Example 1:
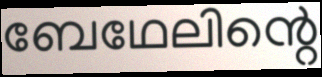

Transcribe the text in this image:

ബേഥേലിന്റെ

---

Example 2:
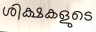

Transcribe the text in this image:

ശിക്ഷകളുടെ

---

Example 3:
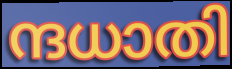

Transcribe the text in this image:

ന്ദധാതി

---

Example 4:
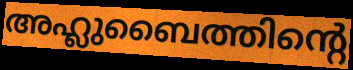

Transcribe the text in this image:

അഹ്ലുബൈത്തിന്റെ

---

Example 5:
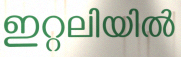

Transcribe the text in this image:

ഇറ്റലിയിൽ